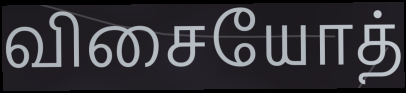
விசையோத்